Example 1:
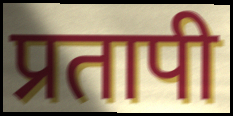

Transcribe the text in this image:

प्रतापी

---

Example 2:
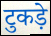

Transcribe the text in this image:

टुकड़े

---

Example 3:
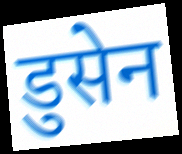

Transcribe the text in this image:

डुसेन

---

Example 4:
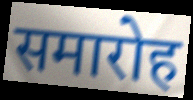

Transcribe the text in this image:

समारोह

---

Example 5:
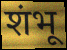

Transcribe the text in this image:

शंभू